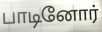
பாடினோர்